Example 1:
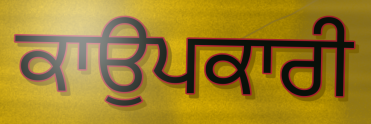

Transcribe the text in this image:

ਕਾਉਪਕਾਰੀ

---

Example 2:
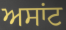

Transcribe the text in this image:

ਅਸਾਂਟ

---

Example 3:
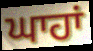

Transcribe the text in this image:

ਘਾਹਾਂ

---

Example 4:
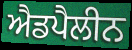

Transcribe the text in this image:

ਐਡਪੈਲੀਨ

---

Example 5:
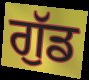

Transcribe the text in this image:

ਗੁੱਡ